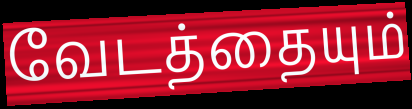
வேடத்தையும்